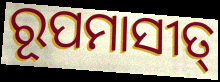
ରୂପମାସୀତ୍